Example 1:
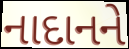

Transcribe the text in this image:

નાદાનને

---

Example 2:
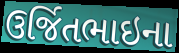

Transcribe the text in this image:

ઉર્જિતભાઇના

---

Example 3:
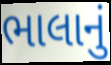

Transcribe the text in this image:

ભાલાનું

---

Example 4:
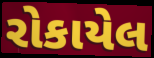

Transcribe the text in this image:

રોકાયેલ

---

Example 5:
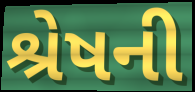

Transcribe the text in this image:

શ્રેષની